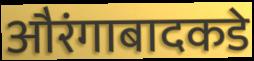
औरंगाबादकडे